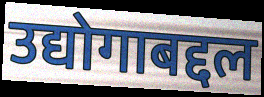
उद्योगाबद्दल